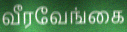
வீரவேங்கை